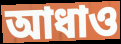
আধাও